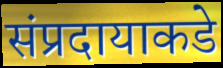
संप्रदायाकडे